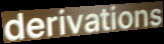
derivations